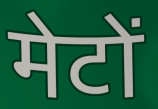
मेटों